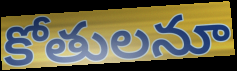
కోతులనూ